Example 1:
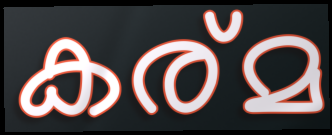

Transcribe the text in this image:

കര്മ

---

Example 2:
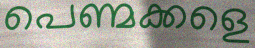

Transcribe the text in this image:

പെണ്മക്കളെ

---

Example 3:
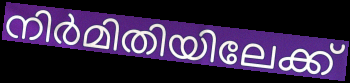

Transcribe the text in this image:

നിർമിതിയിലേക്ക്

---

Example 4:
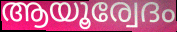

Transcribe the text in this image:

ആയൂര്വേദം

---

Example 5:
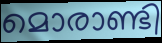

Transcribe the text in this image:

മൊരാണ്ടി